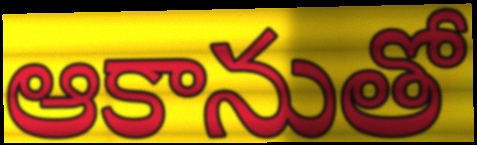
ఆకానుతో